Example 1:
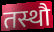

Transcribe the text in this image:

तस्थौ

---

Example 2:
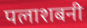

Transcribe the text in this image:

पलाशबनी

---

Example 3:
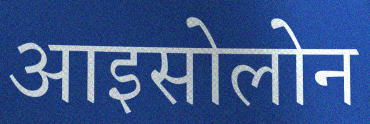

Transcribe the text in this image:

आइसोलोन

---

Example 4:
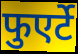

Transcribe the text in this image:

फुएर्टे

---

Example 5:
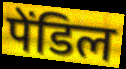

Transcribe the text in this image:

पेंडिल